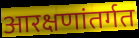
आरक्षणांतर्गत